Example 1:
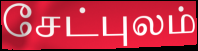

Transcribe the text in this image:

சேட்புலம்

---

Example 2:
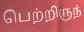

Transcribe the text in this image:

பெற்றிருந்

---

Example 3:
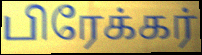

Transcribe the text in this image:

பிரேக்கர்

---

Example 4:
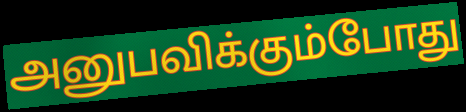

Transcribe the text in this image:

அனுபவிக்கும்போது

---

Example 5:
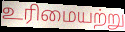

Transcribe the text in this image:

உரிமையற்று